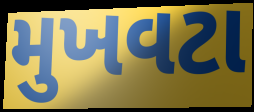
મુખવટા